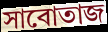
সাবোতাজ